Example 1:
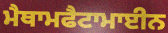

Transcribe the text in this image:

ਮੈਥਾਮਫੈਟਾਮਾਈਨ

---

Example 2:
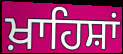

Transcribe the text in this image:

ਖ਼ਾਹਿਸ਼ਾਂ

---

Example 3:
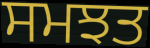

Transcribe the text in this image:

ਸਮਝਤ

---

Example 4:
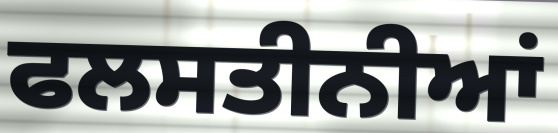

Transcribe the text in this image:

ਫਲਸਤੀਨੀਆਂ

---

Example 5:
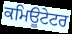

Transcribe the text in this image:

ਕਮਿਊਟੇਟਰ